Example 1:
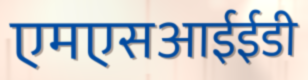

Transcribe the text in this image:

एमएसआईईडी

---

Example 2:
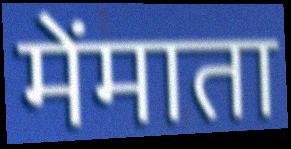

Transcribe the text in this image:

मेंमाता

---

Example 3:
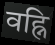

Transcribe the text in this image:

वह्नि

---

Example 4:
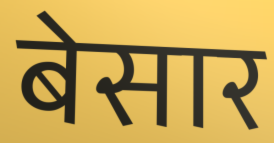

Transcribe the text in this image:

बेसार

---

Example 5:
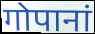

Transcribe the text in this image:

गोपानां